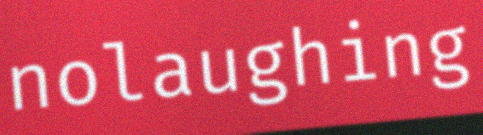
nolaughing